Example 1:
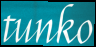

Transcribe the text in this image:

tunko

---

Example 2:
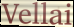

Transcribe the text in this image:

Vellai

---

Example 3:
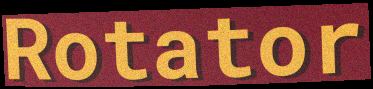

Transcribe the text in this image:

Rotator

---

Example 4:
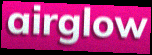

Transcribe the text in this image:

airglow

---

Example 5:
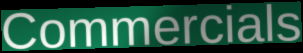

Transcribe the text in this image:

Commercials